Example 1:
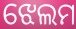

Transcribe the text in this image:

ଝେଲମ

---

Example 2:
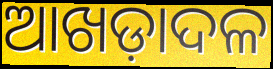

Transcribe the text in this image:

ଆଖଡ଼ାଦଳ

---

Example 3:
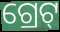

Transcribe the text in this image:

ଗ୍ରେଟ୍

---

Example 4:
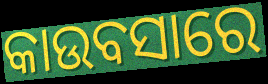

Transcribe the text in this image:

କାଉବସାରେ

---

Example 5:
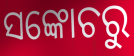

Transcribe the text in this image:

ସଙ୍କୋଚରୁ